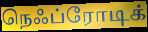
நெஃப்ரோடிக்